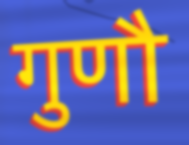
गुणौ